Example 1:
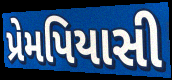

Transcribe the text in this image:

પ્રેમપિયાસી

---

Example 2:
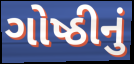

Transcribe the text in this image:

ગોષ્ઠીનું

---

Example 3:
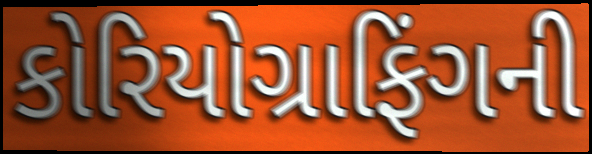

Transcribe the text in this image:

કોરિયોગ્રાફિંગની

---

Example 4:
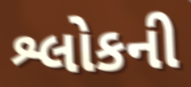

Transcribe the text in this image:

શ્લોકની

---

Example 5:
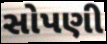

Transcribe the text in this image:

સોપણી